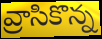
వ్రాసికొన్న